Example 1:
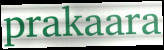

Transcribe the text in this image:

prakaara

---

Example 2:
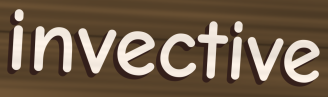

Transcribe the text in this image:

invective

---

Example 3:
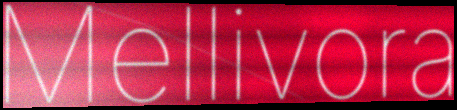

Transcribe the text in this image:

Mellivora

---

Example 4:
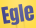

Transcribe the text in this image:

Egle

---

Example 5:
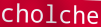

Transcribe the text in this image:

cholche